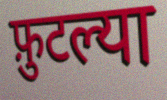
फ़ुटल्या